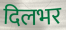
दिलभर